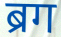
ब्रग